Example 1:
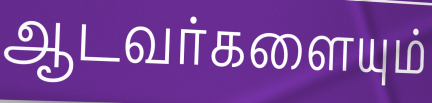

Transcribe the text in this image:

ஆடவர்களையும்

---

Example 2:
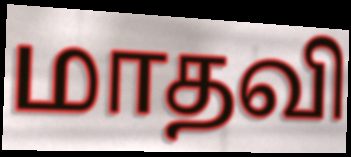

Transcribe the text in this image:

மாதவி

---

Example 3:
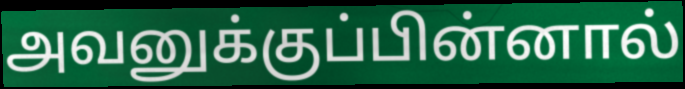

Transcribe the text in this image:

அவனுக்குப்பின்னால்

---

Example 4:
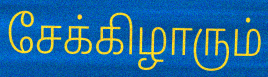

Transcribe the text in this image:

சேக்கிழாரும்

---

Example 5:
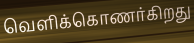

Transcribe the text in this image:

வெளிக்கொணர்கிறது